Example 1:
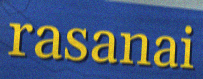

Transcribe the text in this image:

rasanai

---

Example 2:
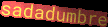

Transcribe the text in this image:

sadadumbre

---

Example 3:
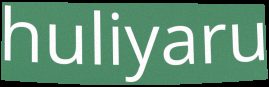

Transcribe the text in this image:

huliyaru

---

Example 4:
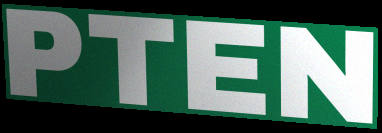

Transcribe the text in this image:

PTEN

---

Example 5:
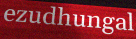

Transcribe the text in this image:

ezudhungal